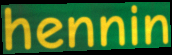
hennin